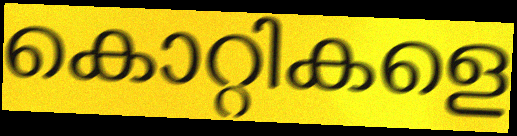
കൊറ്റികളെ